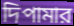
দিপামার